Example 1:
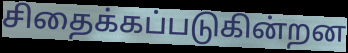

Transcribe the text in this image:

சிதைக்கப்படுகின்றன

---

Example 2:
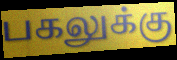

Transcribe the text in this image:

பகலுக்கு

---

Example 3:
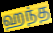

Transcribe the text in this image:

ஹந்த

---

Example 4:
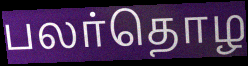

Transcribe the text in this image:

பலர்தொழ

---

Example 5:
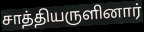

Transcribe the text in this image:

சாத்தியருளினார்